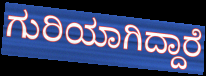
ಗುರಿಯಾಗಿದ್ದಾರೆ